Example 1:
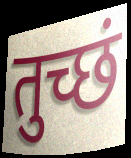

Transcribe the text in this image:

तुच्छं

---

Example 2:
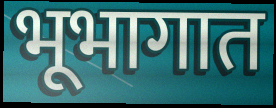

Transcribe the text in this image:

भूभागात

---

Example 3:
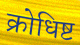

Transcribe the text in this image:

क्रोधिष्ट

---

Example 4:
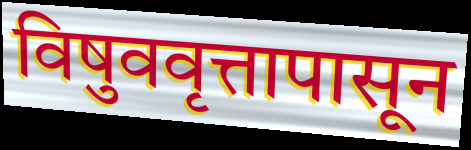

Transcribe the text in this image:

विषुववृत्तापासून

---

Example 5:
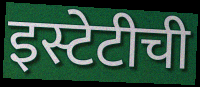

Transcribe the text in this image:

इस्टेटीची